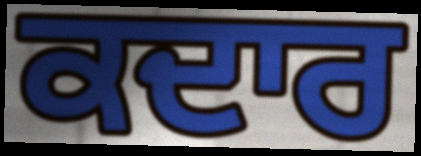
ਕਦਾਰ